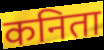
कनिता